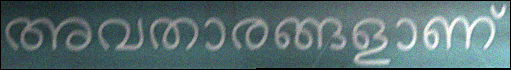
അവതാരങ്ങളാണ്